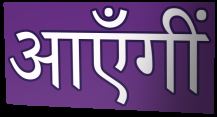
आएँगीं